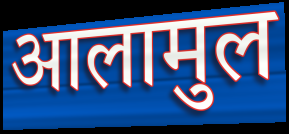
आलामुल